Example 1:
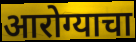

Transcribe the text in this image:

आरोग्याचा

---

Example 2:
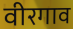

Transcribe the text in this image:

वीरगाव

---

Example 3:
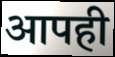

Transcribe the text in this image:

आपही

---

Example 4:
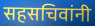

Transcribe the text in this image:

सहसचिवांनी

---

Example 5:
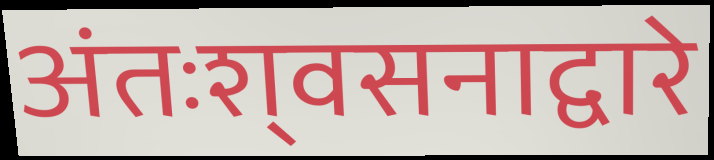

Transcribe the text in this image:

अंतःश्वसनाद्वारे